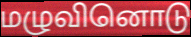
மழுவினொடு